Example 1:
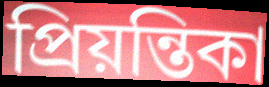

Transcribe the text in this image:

প্রিয়ন্তিকা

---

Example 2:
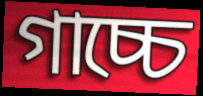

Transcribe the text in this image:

গাচ্চে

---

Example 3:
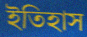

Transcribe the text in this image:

ইতিহাস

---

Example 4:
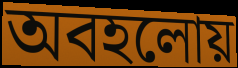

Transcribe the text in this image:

অবহলোয়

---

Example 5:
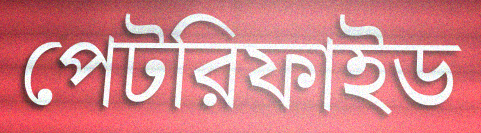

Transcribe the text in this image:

পেটরিফাইড